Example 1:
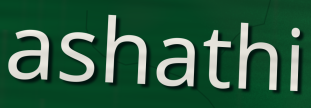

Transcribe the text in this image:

ashathi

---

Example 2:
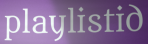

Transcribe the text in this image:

playlistid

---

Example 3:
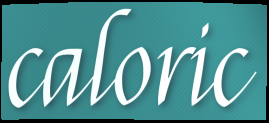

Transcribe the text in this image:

caloric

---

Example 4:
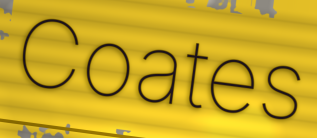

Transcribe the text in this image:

Coates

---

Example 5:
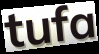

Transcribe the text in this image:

tufa